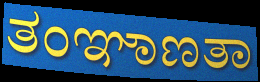
ತಂಞಾಣತಾ